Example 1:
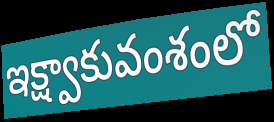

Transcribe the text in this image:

ఇక్ష్వాకువంశంలో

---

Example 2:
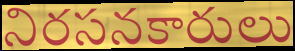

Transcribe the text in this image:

నిరసనకారులు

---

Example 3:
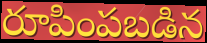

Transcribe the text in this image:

రూపింపబడిన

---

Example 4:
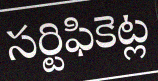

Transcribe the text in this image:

సర్టిఫికెట్ల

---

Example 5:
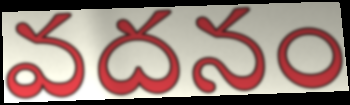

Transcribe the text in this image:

వదనం